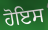
ਹੋਇਸ